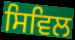
ਸਿਵਿਲ